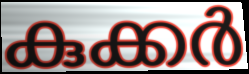
കുക്കർ